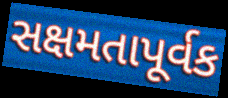
સક્ષમતાપૂર્વક